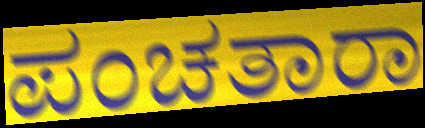
ಪಂಚತಾರಾ